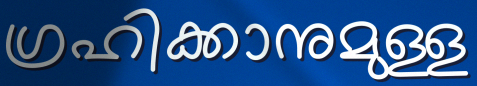
ഗ്രഹിക്കാനുമുള്ള